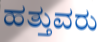
ಹತ್ತುವರು